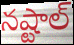
నష్టాల్